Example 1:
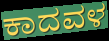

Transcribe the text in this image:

ಕಾದವಳ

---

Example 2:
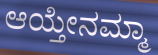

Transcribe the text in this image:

ಆಯ್ತೇನಮ್ಮಾ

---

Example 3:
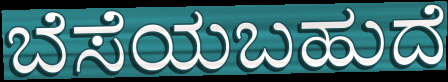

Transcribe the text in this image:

ಬೆಸೆಯಬಹುದೆ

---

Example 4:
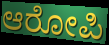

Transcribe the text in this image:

ಆರೋಪಿ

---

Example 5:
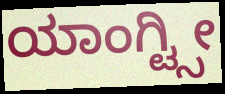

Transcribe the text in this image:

ಯಾಂಗ್ಟ್ಸೀ